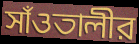
সাঁওতালীর